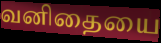
வனிதையை